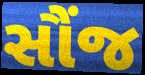
સૌંજ